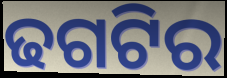
ଢଗଟିର